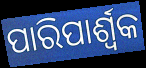
ପାରିପାର୍ଶ୍ବକ